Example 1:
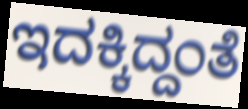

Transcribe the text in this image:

ಇದಕ್ಕಿದ್ದಂತೆ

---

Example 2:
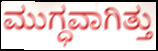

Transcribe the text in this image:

ಮುಗ್ಧವಾಗಿತ್ತು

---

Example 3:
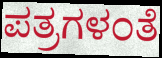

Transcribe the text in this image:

ಪತ್ರಗಳಂತೆ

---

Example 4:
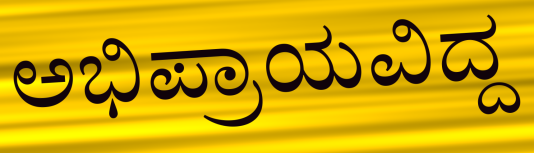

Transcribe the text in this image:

ಅಭಿಪ್ರಾಯವಿದ್ದ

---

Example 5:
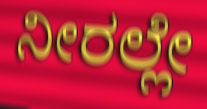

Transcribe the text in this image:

ನೀರಲ್ಲೇ